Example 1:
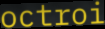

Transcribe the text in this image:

octroi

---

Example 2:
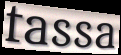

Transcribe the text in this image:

tassa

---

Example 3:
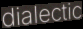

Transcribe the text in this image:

dialectic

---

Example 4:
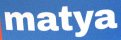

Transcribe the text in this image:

matya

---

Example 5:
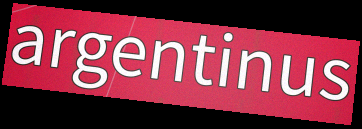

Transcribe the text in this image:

argentinus